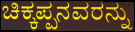
ಚಿಕ್ಕಪ್ಪನವರನ್ನು